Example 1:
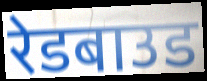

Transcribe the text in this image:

रेडबाउड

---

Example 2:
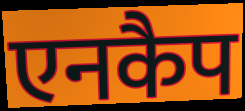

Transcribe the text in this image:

एनकैप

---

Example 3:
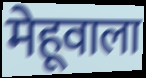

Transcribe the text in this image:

मेहूवाला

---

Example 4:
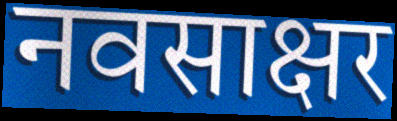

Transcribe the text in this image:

नवसाक्षर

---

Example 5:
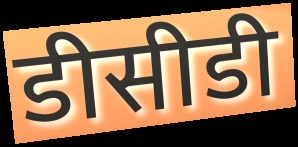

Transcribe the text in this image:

डीसीडी